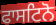
ਫਾਸਟਿਨੋ